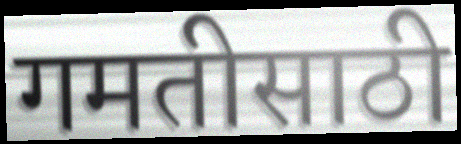
गमतीसाठी